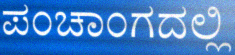
ಪಂಚಾಂಗದಲ್ಲಿ